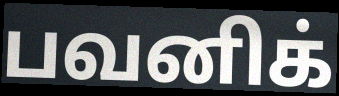
பவனிக்